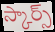
స్కార్స్